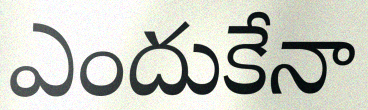
ఎందుకేనా